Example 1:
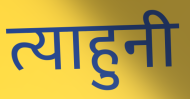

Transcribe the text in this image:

त्याहुनी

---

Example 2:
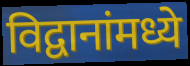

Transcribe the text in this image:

विद्वानांमध्ये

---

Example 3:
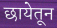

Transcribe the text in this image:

छायेतून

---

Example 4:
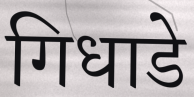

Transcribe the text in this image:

गिधाडे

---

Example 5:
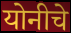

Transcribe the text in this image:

योनीचे